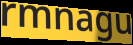
rmnagu